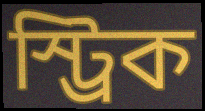
স্ট্রিক